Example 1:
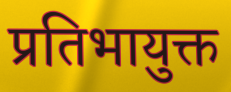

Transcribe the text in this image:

प्रतिभायुक्त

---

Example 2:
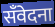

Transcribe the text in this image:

सँवेदना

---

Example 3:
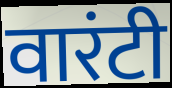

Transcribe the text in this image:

वारंटी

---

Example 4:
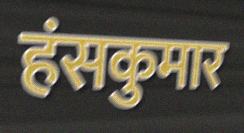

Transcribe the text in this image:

हंसकुमार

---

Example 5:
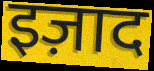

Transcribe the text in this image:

इज़ाद